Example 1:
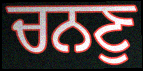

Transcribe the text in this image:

ਚਨਣੁ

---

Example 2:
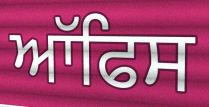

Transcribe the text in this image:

ਆੱਫਿਸ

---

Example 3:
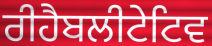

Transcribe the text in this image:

ਰੀਹੈਬਲੀਟੇਟਿਵ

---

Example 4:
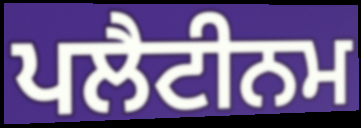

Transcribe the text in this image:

ਪਲੈਟੀਨਮ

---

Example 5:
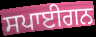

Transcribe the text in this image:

ਸਪਾਈਗਨ